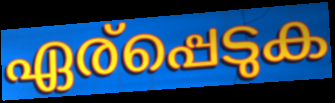
ഏര്പ്പെടുക